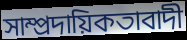
সাম্প্রদায়িকতাবাদী